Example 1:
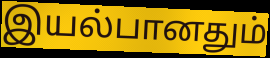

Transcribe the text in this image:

இயல்பானதும்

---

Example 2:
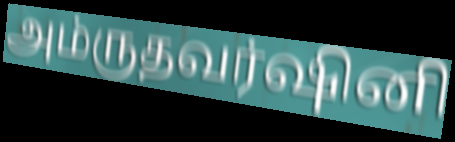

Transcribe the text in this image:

அம்ருதவர்ஷினி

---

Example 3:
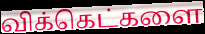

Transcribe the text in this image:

விக்கெட்களை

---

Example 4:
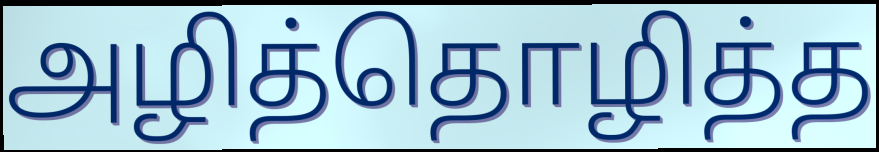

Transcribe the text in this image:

அழித்தொழித்த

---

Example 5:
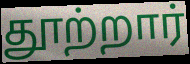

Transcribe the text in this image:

தூற்றார்